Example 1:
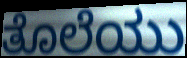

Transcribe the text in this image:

ತೊಲೆಯು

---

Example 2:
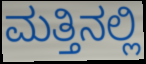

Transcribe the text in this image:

ಮತ್ತಿನಲ್ಲಿ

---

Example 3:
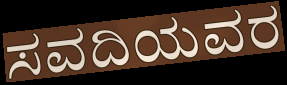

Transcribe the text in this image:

ಸವದಿಯವರ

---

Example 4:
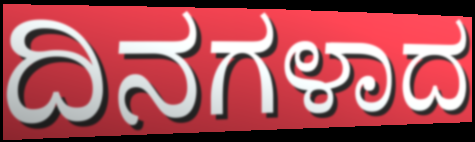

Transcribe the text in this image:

ದಿನಗಳಾದ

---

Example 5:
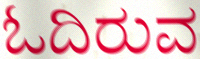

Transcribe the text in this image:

ಓದಿರುವ